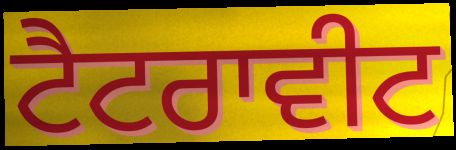
ਟੈਟਰਾਵੀਟ